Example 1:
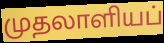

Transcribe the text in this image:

முதலாளியப்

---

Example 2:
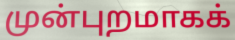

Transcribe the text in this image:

முன்புறமாகக்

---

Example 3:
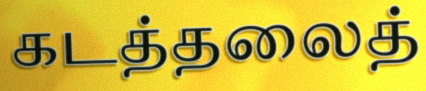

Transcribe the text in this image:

கடத்தலைத்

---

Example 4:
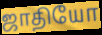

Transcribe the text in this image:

ஜாதியோ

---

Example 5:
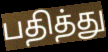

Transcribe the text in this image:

பதித்து